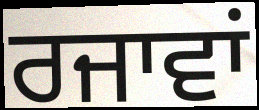
ਰਜਾਵਾਂ